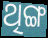
ଥିଙ୍ଗ